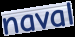
naval